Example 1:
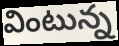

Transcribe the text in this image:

వింటున్న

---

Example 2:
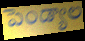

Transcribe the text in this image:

పెండ్యాల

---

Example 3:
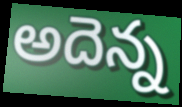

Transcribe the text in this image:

అదెన్న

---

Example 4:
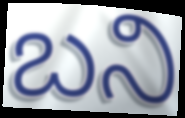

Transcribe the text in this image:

బని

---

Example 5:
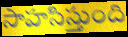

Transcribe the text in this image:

సాహసిస్తుంది